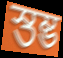
স্তম্ভ